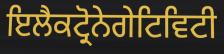
ਇਲੈਕਟ੍ਰੋਨੇਗੇਟਿਵਿਟੀ